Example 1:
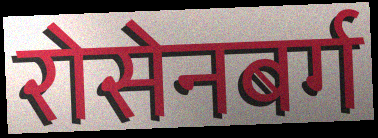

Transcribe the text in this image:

रोसेनबर्ग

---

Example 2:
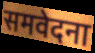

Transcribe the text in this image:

समवेदना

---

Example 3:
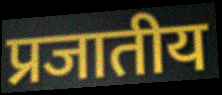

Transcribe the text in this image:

प्रजातीय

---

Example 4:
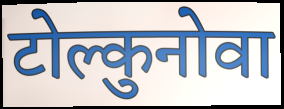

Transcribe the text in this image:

टोल्कुनोवा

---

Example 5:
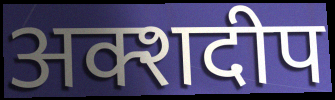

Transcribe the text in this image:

अक्शदीप